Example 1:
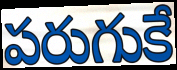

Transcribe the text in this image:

పరుగుకే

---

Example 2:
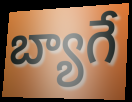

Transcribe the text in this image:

బ్యాగే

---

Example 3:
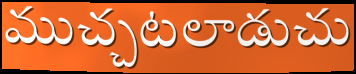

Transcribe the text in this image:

ముచ్చటలాడుచు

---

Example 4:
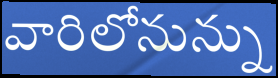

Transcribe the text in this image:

వారిలోనున్ను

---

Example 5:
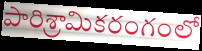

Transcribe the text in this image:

పారిశ్రామికరంగంలో